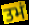
उभं